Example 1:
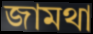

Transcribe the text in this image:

জামথা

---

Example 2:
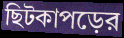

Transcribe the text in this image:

ছিটকাপড়ের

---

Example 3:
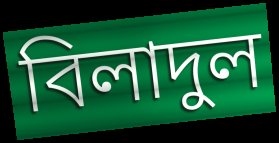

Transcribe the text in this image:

বিলাদুল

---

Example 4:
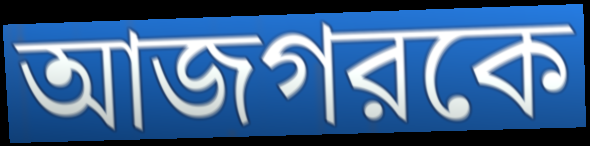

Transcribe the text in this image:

আজগরকে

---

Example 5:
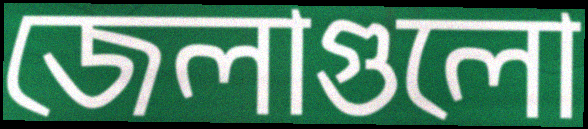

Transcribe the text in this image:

জেলাগুলো